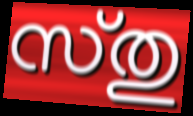
സ്തു